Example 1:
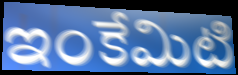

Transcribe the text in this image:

ఇంకేమిటి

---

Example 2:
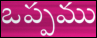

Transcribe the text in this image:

ఒప్పము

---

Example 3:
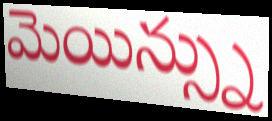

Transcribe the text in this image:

మెయిన్స్ను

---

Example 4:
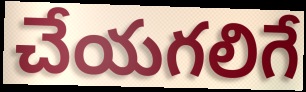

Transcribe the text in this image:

చేయగలిగే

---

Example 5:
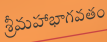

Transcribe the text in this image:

శ్రీమహాభాగవతం